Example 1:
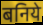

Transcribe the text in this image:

बनिये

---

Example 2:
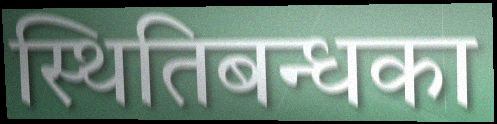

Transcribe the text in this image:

स्थितिबन्धका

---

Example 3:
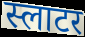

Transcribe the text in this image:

स्लाटर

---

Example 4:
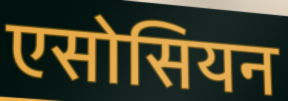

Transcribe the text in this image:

एसोसियन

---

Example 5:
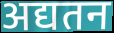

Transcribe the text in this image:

अद्यतन